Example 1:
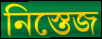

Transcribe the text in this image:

নিস্তেজ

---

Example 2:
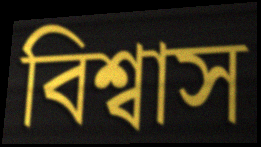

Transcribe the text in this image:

বিশ্বাস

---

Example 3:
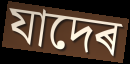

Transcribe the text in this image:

যাদেৰ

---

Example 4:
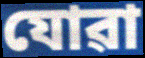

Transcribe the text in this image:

যোৱা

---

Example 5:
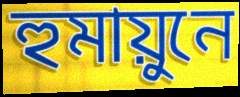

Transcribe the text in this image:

হুমায়ুনে